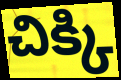
చిక్కి